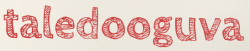
taledooguva